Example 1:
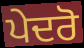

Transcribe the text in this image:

ਪੇਦਰੋ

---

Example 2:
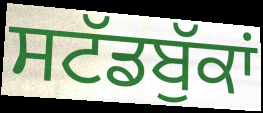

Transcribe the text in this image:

ਸਟੱਡਬੁੱਕਾਂ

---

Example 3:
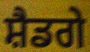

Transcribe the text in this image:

ਸ਼ੈਡਗੇ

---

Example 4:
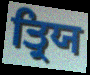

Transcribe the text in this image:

ਤ੍ਰਿਯ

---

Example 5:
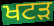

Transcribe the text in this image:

ਖਟੜ